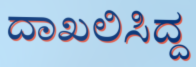
ದಾಖಲಿಸಿದ್ದ